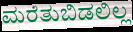
ಮರೆತುಬಿಡಲಿಲ್ಲ